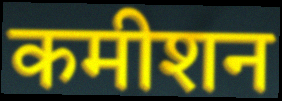
कमीशन